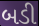
બડી